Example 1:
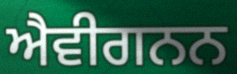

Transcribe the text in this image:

ਐਵੀਗਨਨ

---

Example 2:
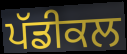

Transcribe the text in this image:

ਪੱਡੀਕਲ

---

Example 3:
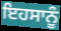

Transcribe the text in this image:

ਇਹਸਾਨੂੰ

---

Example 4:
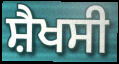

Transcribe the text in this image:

ਸ਼ੈਖਸੀ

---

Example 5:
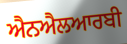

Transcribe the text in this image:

ਐਨਐਲਆਰਬੀ